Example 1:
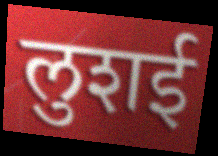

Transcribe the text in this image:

लुशई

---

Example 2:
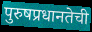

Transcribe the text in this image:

पुरुषप्रधानतेची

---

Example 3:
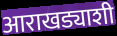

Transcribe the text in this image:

आराखड्याशी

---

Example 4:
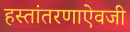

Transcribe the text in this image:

हस्तांतरणाऐवजी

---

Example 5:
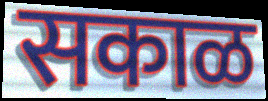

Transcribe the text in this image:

सकाळ